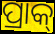
ପ୍ରାକ୍